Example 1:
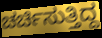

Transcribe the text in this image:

ಚರ್ಚಿಸುತ್ತಿದ್ದ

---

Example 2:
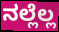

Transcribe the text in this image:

ನಲ್ಲೆಲ್ಲ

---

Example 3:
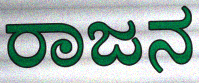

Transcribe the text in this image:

ರಾಜನ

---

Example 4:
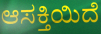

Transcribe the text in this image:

ಆಸಕ್ತಿಯಿದೆ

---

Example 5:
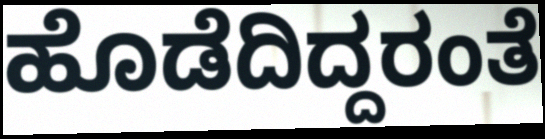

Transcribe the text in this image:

ಹೊಡೆದಿದ್ದರಂತೆ